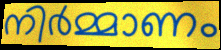
നിർമ്മാണം